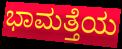
ಭಾಮತ್ತೆಯ